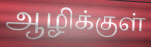
ஆழிக்குள்